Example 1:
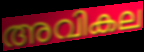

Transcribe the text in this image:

അവികല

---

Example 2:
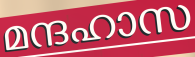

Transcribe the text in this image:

മന്ദഹാസ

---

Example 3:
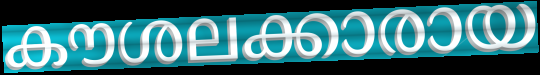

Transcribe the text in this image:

കൗശലക്കാരായ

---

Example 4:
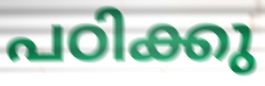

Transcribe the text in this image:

പഠിക്കു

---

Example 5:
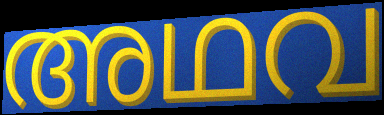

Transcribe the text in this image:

അഥവ